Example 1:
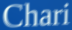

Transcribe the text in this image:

Chari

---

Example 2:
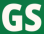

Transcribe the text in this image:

GS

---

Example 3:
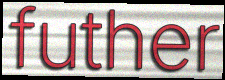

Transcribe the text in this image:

futher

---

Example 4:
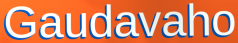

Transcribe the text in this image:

Gaudavaho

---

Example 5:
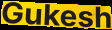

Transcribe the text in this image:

Gukesh